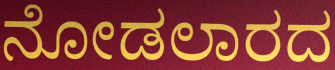
ನೋಡಲಾರದ